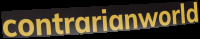
contrarianworld